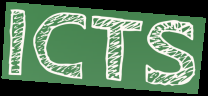
ICTS